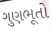
ગુણભૂતો